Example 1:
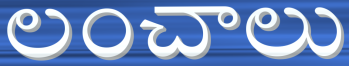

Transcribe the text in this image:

లంచాలు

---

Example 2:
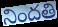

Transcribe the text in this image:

నిందతి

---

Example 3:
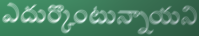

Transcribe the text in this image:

ఎదుర్కొంటున్నాయని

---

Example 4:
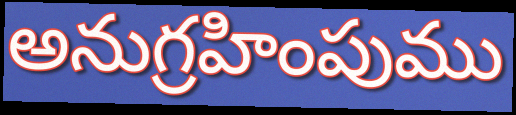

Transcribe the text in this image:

అనుగ్రహింపుము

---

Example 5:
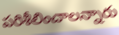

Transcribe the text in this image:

పరిశీలించాలన్నారు